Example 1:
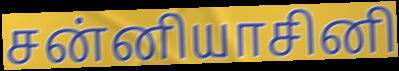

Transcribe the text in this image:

சன்னியாசினி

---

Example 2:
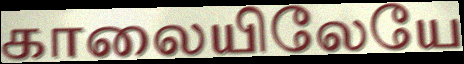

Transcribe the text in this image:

காலையிலேயே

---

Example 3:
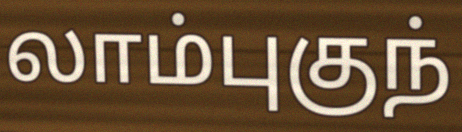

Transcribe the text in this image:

லாம்புகுந்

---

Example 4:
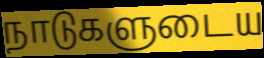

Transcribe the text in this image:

நாடுகளுடைய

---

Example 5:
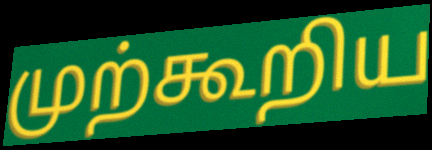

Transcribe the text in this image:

முற்கூறிய